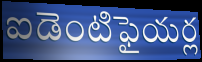
ఐడెంటిఫైయర్ల